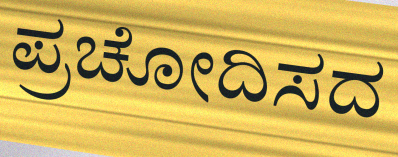
ಪ್ರಚೋದಿಸದ